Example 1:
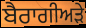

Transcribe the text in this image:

ਬੈਰਾਗੀਅੜੇ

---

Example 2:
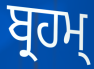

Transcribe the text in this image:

ਬ੍ਰਹਮ੍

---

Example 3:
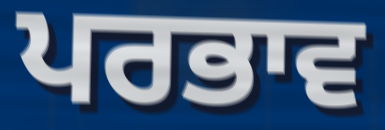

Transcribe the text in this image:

ਪਰਭਾਵ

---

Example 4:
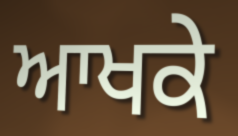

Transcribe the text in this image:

ਆਖਕੇ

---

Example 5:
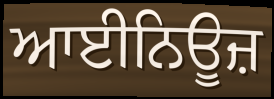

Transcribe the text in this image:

ਆਈਨਿਊਜ਼